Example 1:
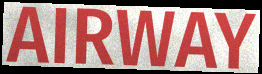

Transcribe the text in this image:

AIRWAY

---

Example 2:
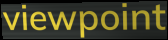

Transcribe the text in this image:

viewpoint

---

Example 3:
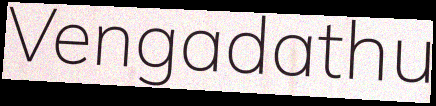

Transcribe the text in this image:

Vengadathu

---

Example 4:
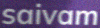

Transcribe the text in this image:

saivam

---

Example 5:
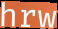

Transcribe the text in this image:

hrw